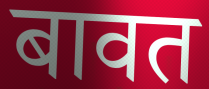
बावत